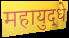
महायुद्धे